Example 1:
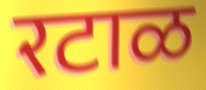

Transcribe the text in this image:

रटाळ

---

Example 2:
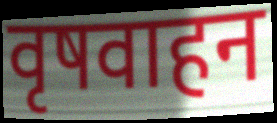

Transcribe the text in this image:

वृषवाहन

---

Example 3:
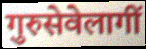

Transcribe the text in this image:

गुरुसेवेलागीं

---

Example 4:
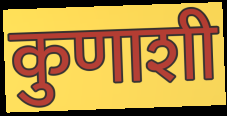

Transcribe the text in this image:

कुणाशी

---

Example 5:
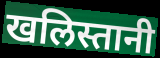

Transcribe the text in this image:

खलिस्तानी